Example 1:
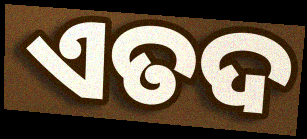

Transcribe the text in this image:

ଏତଦ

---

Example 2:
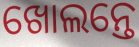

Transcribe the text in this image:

ଖୋଲନ୍ତେ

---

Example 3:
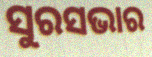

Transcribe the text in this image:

ସୁରସଭାର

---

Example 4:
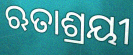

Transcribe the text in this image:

ଋତାଶ୍ରୟୀ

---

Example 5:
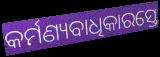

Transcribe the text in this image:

କର୍ମଣ୍ୟବାଧିକାରସ୍ତେ